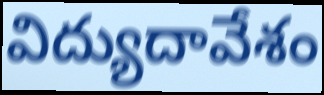
విద్యుదావేశం